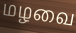
மழவை